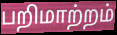
பறிமாற்றம்